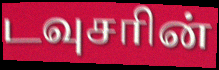
டவுசரின்